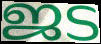
ജട